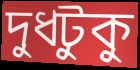
দুধটুকু